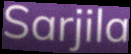
Sarjila